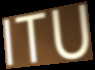
ITU